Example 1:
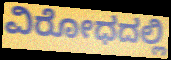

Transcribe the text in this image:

ವಿರೋಧದಲ್ಲಿ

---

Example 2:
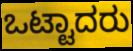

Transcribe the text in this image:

ಒಟ್ಟಾದರು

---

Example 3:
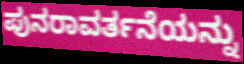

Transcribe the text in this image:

ಪುನರಾವರ್ತನೆಯನ್ನು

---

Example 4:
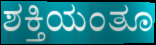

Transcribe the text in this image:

ಶಕ್ತಿಯಂತೂ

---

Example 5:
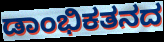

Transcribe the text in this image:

ಡಾಂಭಿಕತನದ